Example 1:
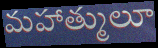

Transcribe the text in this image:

మహాత్ములూ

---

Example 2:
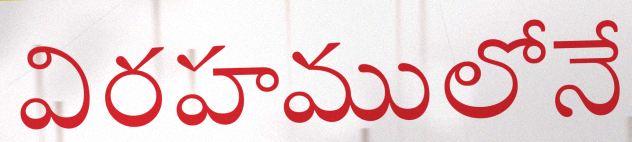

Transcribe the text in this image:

విరహములోనే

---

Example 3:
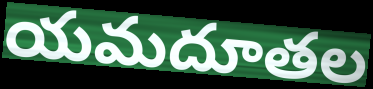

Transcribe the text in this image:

యమదూతల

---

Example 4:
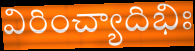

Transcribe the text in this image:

విరించ్యాదిభిః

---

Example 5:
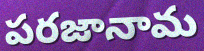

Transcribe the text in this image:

పరజానామ